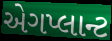
એગપ્લાન્ટ